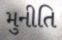
મુનીતિ